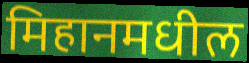
मिहानमधील